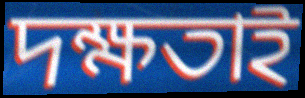
দক্ষতাই